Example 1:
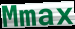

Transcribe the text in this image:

Mmax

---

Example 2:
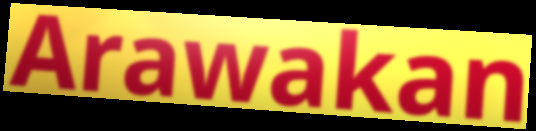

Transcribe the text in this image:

Arawakan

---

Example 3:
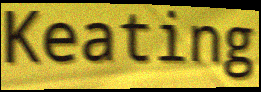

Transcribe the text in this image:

Keating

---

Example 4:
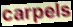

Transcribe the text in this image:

carpels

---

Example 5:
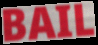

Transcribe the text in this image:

BAIL